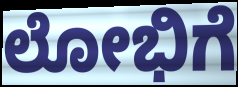
ಲೋಭಿಗೆ